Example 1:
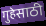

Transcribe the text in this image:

गुहेसाठी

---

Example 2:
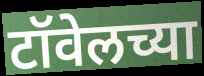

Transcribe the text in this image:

टॉवेलच्या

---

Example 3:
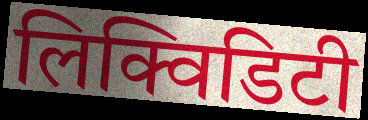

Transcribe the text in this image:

लिक्विडिटी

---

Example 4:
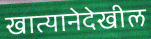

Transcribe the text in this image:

खात्यानेदेखील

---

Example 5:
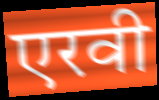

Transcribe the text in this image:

एरवी